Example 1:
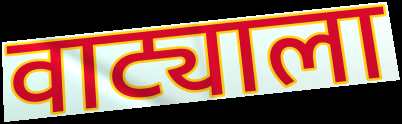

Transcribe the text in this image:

वाट्याला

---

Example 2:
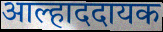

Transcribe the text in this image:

आल्हाददायक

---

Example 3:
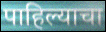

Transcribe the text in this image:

पाहिल्याचा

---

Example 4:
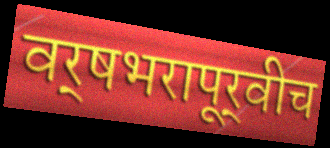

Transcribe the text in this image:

वर्षभरापूर्वीच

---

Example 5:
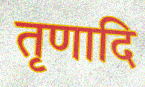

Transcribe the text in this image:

तृणादि